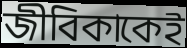
জীবিকাকেই